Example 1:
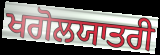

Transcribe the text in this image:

ਖਗੋਲਯਾਤਰੀ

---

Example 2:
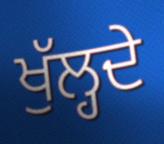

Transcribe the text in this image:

ਖੁੱਲ੍ਹਦੇ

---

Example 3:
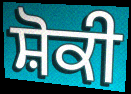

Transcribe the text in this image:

ਸ਼ੋਕੀ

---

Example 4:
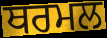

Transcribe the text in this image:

ਥਰਮਲ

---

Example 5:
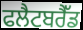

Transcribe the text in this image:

ਫਲੈਟਬਰੈੱਡ